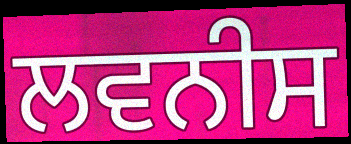
ਲਵਨੀਸ